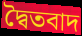
দ্বৈতবাদ